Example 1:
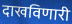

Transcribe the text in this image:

दाखविणारी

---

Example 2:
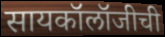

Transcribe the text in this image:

सायकॉलॉजीची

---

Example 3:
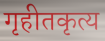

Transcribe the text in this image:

गृहीतकृत्य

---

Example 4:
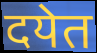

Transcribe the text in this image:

दयेत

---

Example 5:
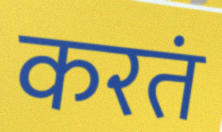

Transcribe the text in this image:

करतं